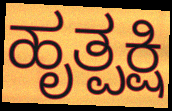
ಹೃತ್ಪಕ್ಷಿ